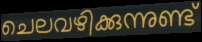
ചെലവഴിക്കുന്നുണ്ട്